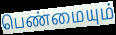
பெண்மையும்